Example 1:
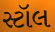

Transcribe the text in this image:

સ્ટૉલ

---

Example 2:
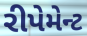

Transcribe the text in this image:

રીપેમેન્ટ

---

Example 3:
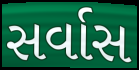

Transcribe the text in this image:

સર્વાસ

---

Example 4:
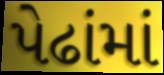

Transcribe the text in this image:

પેઢાંમાં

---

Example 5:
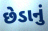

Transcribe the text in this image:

છેડાનું